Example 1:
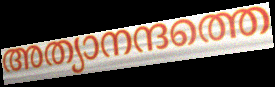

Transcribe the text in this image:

അത്യാനന്ദത്തെ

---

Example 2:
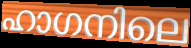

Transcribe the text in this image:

ഹാഗനിലെ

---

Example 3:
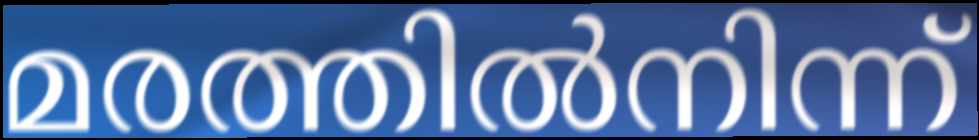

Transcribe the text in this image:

മരത്തിൽനിന്ന്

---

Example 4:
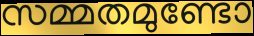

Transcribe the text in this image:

സമ്മതമുണ്ടോ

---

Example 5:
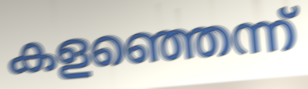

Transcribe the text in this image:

കളഞ്ഞെന്ന്